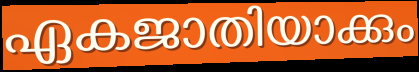
ഏകജാതിയാക്കും